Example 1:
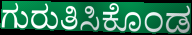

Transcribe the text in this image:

ಗುರುತಿಸಿಕೊಂಡ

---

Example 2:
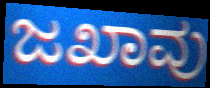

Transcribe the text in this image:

ಜಖಾವು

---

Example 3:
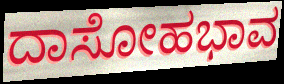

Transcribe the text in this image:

ದಾಸೋಹಭಾವ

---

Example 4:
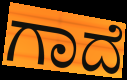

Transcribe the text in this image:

ಗಾದೆ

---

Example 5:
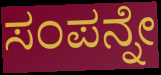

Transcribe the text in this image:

ಸಂಪನ್ನೇ